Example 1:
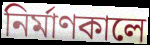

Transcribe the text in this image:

নির্মাণকালে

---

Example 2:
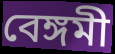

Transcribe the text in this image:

বেঙ্গমী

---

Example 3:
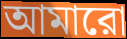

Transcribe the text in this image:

আমারো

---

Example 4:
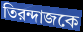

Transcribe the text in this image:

তিরন্দাজকে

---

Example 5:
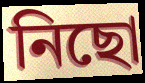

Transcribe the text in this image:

নিছো